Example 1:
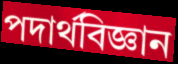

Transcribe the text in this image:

পদাৰ্থবিজ্ঞান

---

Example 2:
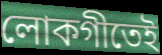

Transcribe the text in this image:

লোকগীতেই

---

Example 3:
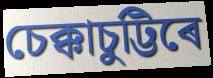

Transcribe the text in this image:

চেক্কাচুট্টিৰে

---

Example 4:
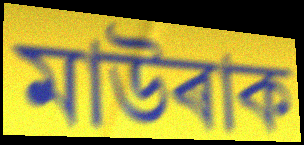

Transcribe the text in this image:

মাউৰাক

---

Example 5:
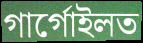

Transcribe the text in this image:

গাৰ্গোইলত